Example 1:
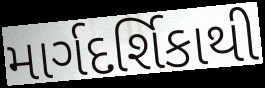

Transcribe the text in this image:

માર્ગદર્શિકાથી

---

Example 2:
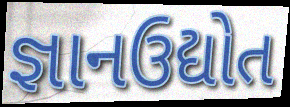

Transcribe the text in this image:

જ્ઞાનઉદ્યોત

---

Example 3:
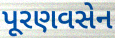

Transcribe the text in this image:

પૂરણવસેન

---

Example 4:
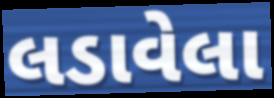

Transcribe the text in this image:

લડાવેલા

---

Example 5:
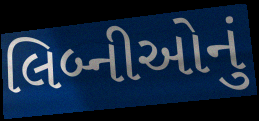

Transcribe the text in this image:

લિબ્નીઓનું